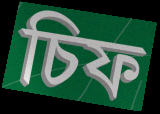
চিফ